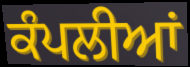
ਕੰਪਲੀਆਂ